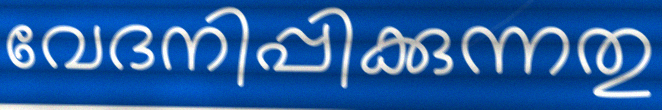
വേദനിപ്പിക്കുന്നതു